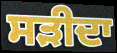
ਸੜੀਦਾ